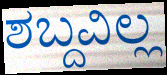
ಶಬ್ದವಿಲ್ಲ